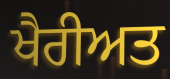
ਖੈਰੀਅਤ